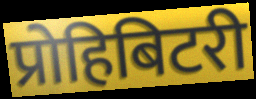
प्रोहिबिटरी